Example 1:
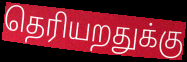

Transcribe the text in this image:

தெரியறதுக்கு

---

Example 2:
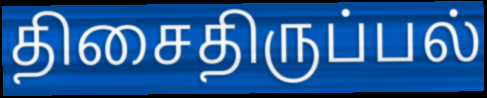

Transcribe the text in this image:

திசைதிருப்பல்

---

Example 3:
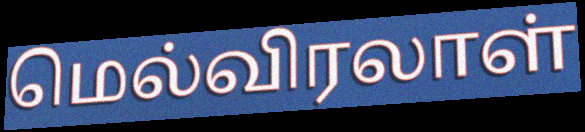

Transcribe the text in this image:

மெல்விரலாள்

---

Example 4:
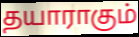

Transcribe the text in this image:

தயாராகும்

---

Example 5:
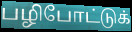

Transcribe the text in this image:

பழிபோட்டுக்